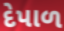
દેપાળ